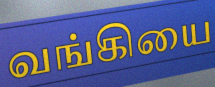
வங்கியை